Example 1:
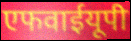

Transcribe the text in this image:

एफवाईयूपी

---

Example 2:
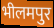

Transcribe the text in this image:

भीलमपुर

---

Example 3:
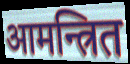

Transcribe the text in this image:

आमन्त्रित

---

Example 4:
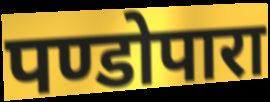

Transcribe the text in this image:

पण्डोपारा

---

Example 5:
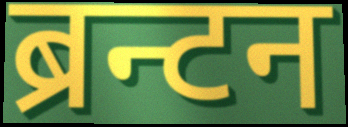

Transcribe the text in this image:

ब्रन्टन